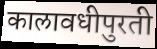
कालावधीपुरती